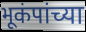
भूकंपांच्या